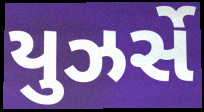
યુઝર્સે